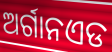
ଅର୍ଗାନଏଡ